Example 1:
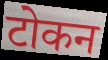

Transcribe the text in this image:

टोकन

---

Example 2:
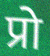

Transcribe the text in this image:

प्रो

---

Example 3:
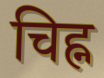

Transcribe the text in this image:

चिह्न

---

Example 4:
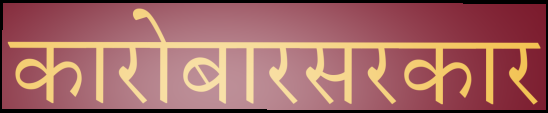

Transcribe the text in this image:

कारोबारसरकार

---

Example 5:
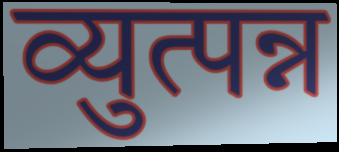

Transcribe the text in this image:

व्युत्पन्न